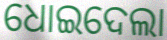
ଧୋଇଦେଲା